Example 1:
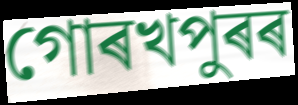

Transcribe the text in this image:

গোৰখপুৰৰ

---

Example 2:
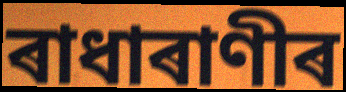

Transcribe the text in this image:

ৰাধাৰাণীৰ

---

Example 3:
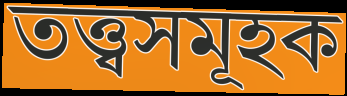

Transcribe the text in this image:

তত্ত্বসমূহক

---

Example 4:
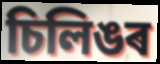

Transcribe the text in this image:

চিলিঙৰ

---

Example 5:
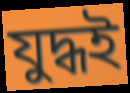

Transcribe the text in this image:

যুদ্ধই